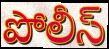
పోలీస్